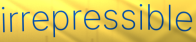
irrepressible